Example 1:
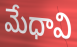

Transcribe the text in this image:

మేధావి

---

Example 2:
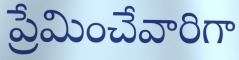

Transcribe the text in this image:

ప్రేమించేవారిగా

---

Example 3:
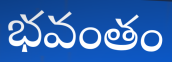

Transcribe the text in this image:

భవంతం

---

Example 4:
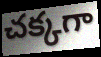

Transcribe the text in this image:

చక్కగా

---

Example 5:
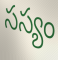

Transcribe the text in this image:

సస్యం